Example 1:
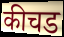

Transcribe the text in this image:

कीचड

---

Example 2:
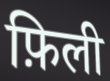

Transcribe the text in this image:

फ़िली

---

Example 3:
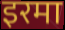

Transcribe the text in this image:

इरमा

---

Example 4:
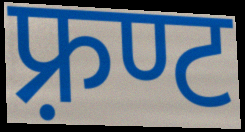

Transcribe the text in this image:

फ़्रण्ट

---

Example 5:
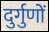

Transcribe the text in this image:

दुर्गुणों